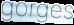
gorges